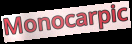
Monocarpic